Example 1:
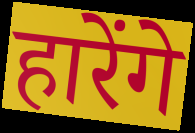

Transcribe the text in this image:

हारेंगे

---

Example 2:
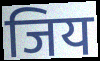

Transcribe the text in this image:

जिय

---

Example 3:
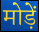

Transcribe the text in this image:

मोड़ें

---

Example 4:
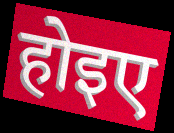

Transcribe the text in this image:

होइए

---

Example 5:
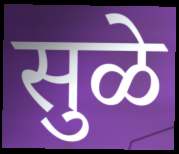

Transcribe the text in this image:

सुळे